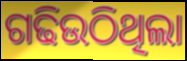
ଗଢିଉଠିଥିଲା